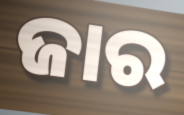
ଜାର